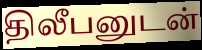
திலீபனுடன்